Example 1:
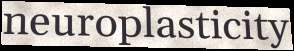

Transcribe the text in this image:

neuroplasticity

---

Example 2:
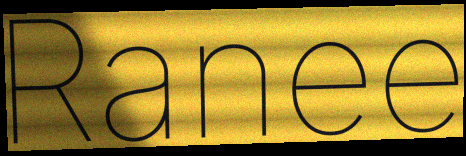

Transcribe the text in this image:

Ranee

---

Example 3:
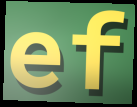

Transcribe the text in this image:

ef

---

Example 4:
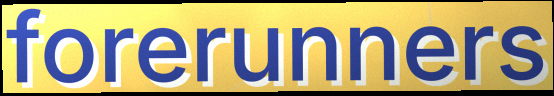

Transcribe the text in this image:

forerunners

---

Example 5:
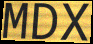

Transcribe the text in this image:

MDX